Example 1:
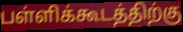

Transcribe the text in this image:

பள்ளிக்கூடத்திற்கு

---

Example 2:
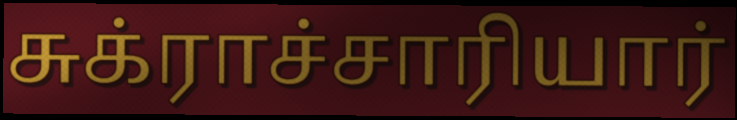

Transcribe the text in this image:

சுக்ராச்சாரியார்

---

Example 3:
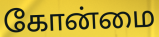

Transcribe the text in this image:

கோன்மை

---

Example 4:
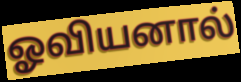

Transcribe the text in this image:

ஓவியனால்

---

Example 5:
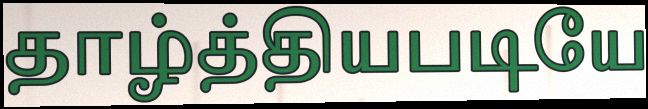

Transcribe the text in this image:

தாழ்த்தியபடியே